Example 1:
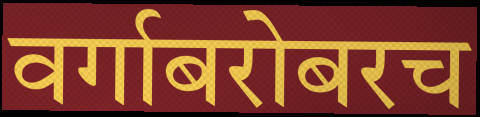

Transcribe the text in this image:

वर्गाबरोबरच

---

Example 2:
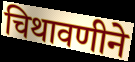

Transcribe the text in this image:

चिथावणीने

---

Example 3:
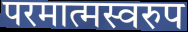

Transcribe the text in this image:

परमात्मस्वरुप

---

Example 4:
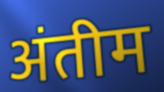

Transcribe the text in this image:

अंतीम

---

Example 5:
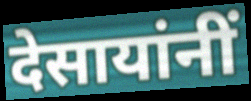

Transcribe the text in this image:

देसायांनीं